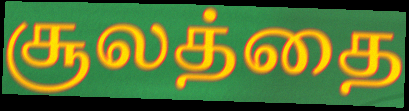
சூலத்தை